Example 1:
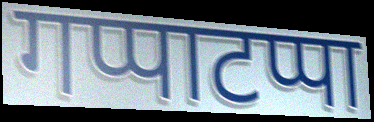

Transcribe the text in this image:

गप्पाटप्पा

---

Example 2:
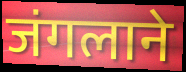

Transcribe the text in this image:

जंगलाने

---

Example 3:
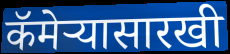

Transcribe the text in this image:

कॅमेऱ्यासारखी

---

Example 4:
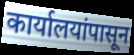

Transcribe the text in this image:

कार्यालयांपासून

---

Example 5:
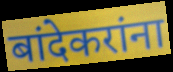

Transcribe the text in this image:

बांदेकरांना